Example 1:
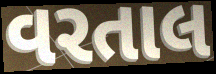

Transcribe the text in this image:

વરતાલ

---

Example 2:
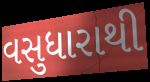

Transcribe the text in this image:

વસુધારાથી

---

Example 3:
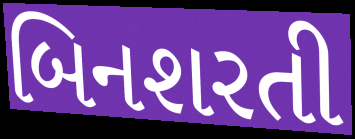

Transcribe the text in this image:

બિનશરતી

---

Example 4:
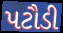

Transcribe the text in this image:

પટૌડી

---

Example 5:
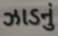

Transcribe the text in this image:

ઝાડનું